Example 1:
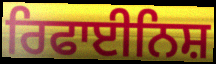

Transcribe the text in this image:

ਰਿਫਾਈਨਿਸ਼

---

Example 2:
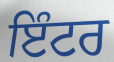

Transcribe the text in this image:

ਇੰਟਰ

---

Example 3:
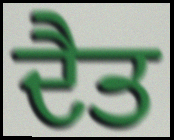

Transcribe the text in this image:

ਦੈਤ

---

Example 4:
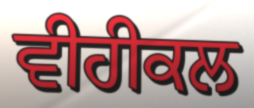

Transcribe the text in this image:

ਵੀਹੀਕਲ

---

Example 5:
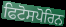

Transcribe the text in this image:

ਫਿਟੋਸਪੋਰਿਨ